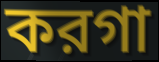
করগা